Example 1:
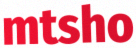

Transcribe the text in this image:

mtsho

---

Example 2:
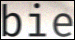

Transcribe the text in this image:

bie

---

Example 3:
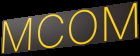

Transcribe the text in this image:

MCOM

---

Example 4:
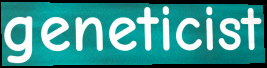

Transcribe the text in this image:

geneticist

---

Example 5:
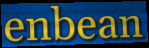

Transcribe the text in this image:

enbean